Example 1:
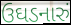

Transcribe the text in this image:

ઉઘડનારું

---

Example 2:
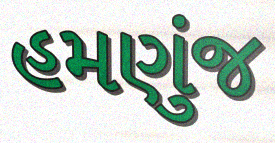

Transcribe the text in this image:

હમણુંજ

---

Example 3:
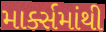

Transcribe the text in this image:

માર્ક્સમાંથી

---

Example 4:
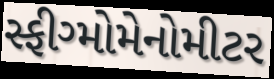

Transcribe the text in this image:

સ્ફીગ્મોમેનોમીટર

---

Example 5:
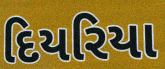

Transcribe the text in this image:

દિયરિયા